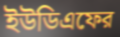
ইউডিএফের